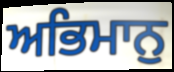
ਅਭਿਮਾਨੁ